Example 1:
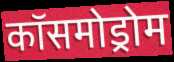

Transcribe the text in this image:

कॉसमोड्रोम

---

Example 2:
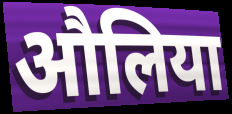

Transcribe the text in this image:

औलिया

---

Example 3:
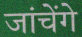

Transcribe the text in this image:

जांचेंगे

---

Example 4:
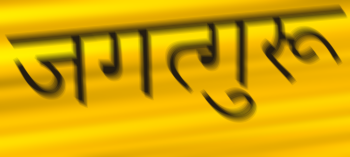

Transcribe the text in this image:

जगत्गुरू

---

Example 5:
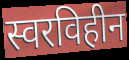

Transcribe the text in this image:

स्वरविहीन